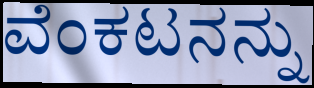
ವೆಂಕಟನನ್ನು